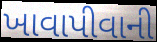
ખાવાપીવાની